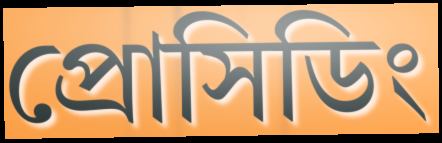
প্রোসিডিং